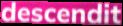
descendit